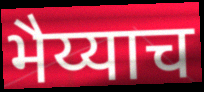
भैय्याच